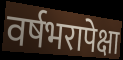
वर्षभरापेक्षा